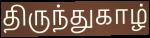
திருந்துகாழ்